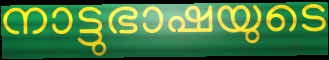
നാട്ടുഭാഷയുടെ